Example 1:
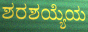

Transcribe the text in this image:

ಶರಶಯ್ಯೆಯ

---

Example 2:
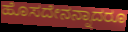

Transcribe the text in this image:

ಹೊಸದೇನನ್ನಾದರೂ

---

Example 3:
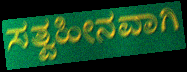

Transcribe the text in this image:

ಸತ್ವಹೀನವಾಗಿ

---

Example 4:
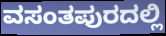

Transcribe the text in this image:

ವಸಂತಪುರದಲ್ಲಿ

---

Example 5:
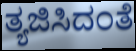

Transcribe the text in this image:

ತ್ಯಜಿಸಿದಂತೆ